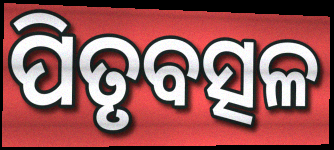
ପିତୃବତ୍ସଳ